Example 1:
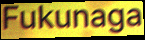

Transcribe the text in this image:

Fukunaga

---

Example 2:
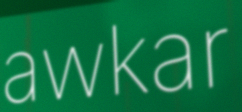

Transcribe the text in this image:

awkar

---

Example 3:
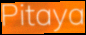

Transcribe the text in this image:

Pitaya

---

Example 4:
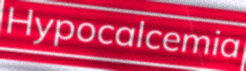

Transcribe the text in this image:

Hypocalcemia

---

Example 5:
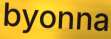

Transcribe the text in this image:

byonna